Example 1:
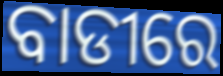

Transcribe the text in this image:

ବାଡୀରେ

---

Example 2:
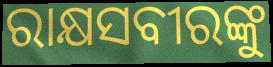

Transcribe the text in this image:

ରାକ୍ଷସବୀରଙ୍କୁ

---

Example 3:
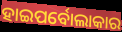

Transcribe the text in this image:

ହାଇପର୍ବୋଲାକାର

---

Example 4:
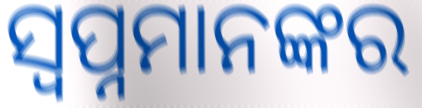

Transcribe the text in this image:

ସ୍ବପ୍ନମାନଙ୍କର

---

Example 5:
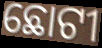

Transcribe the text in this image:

ଛୋଟୀ